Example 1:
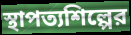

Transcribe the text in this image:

স্থাপত্যশিল্পের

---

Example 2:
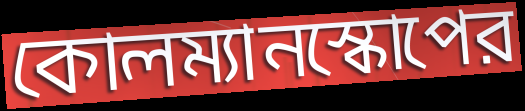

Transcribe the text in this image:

কোলম্যানস্কোপের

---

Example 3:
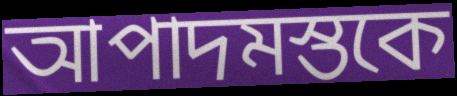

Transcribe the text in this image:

আপাদমস্তকে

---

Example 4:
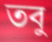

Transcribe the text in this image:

তবু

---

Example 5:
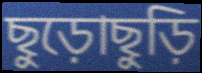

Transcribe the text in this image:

ছুড়োছুড়ি